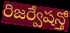
రిజర్వేషన్తో